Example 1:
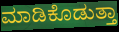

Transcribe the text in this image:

ಮಾಡಿಕೊಡುತ್ತಾ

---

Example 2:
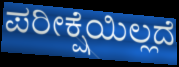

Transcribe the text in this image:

ಪರೀಕ್ಷೆಯಿಲ್ಲದೆ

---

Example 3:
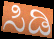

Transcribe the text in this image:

ಸಿಡಿ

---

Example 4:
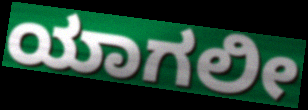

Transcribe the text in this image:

ಯಾಗಲೀ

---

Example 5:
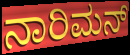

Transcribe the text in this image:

ನಾರಿಮನ್